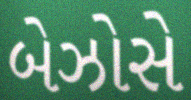
બેઝોસે